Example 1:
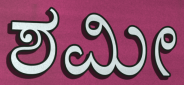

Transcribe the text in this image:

ಶಮೀ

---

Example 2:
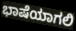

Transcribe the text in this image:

ಭಾಷೆಯಾಗಲಿ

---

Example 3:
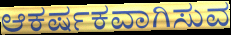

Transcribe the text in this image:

ಆಕರ್ಷಕವಾಗಿಸುವ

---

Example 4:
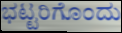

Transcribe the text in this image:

ಭಟ್ಟರಿಗೊಂದು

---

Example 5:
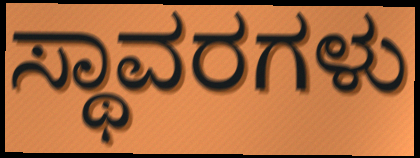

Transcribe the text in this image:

ಸ್ಥಾವರಗಳು